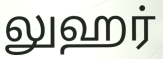
லுஹர்